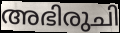
അഭിരുചി